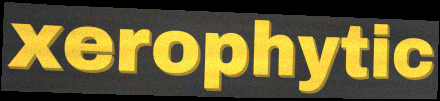
xerophytic